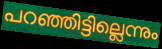
പറഞ്ഞിട്ടില്ലെന്നും